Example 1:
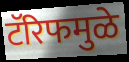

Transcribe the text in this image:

टॅरिफमुळे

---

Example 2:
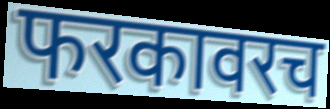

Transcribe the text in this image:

फरकावरच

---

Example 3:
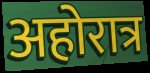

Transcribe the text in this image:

अहोरात्र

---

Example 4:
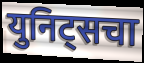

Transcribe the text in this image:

युनिट्सचा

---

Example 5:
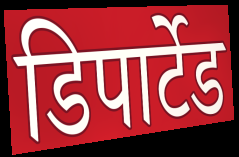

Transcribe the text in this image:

डिपार्टेड